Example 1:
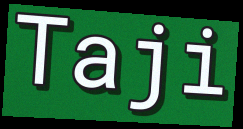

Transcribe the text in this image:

Taji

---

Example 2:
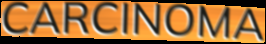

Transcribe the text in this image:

CARCINOMA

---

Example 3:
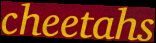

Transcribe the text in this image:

cheetahs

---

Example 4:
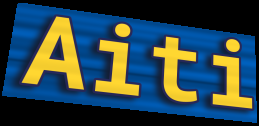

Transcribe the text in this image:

Aiti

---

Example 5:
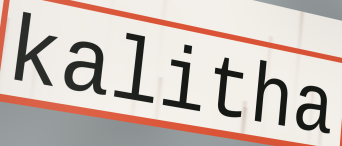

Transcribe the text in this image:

kalitha